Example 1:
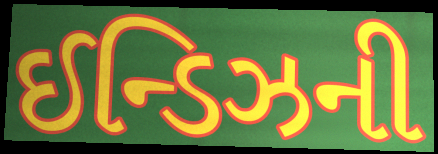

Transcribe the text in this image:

ઈન્ડિઝની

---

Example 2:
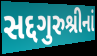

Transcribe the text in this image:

સદ્દગુરુશ્રીનાં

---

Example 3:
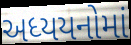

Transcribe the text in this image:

અધ્યયનોમાં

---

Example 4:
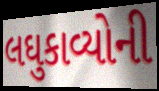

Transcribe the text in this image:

લઘુકાવ્યોની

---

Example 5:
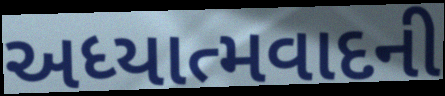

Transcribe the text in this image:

અધ્યાત્મવાદની